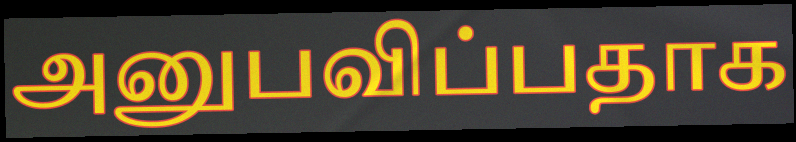
அனுபவிப்பதாக